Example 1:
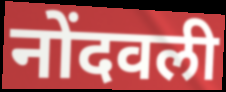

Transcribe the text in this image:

नोंदवली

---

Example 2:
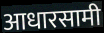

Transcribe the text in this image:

आधारसामी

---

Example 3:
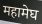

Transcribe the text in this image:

महामेघ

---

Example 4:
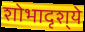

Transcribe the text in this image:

शोभादृश्ये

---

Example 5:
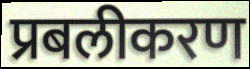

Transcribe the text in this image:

प्रबलीकरण